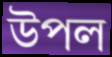
উপল